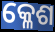
କ୍ଳେଶ